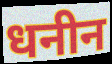
धनीन